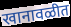
खानावळीत